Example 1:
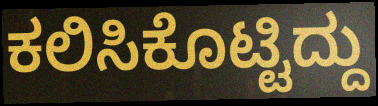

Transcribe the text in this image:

ಕಲಿಸಿಕೊಟ್ಟಿದ್ದು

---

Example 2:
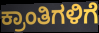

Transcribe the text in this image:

ಕ್ರಾಂತಿಗಳಿಗೆ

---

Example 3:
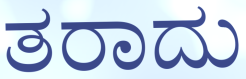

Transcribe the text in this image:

ತರಾದು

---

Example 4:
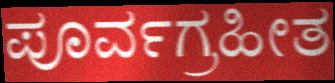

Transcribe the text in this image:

ಪೂರ್ವಗ್ರಹೀತ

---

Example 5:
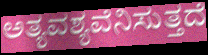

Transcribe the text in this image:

ಅತ್ಯವಶ್ಯವೆನಿಸುತ್ತದೆ